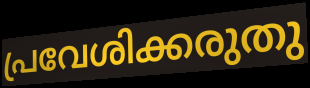
പ്രവേശിക്കരുതു